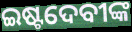
ଇଷ୍ଟଦେବୀଙ୍କ